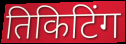
तिकिटिंग